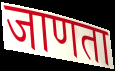
जाणता